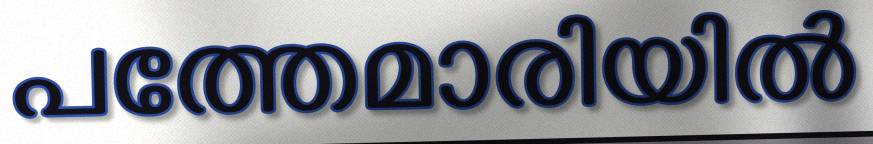
പത്തേമാരിയിൽ